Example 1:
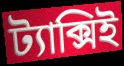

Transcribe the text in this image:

ট্যাক্সিই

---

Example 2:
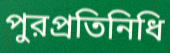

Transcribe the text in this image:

পুরপ্রতিনিধি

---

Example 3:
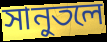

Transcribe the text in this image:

সানুতলে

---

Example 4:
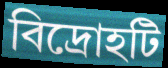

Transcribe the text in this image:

বিদ্রোহটি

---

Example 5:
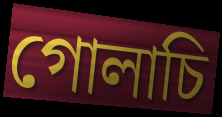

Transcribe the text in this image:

গোলাচি